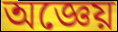
অজ্ঞেয়